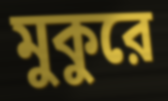
মুকুরে